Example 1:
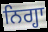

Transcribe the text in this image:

ਨਿਗ੍ਹਾ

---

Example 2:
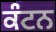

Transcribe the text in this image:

ਕੰਟਨ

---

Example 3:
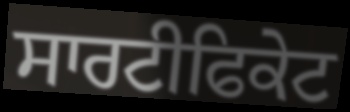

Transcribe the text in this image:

ਸਾਰਟੀਫਿਕੇਟ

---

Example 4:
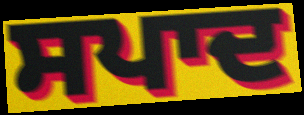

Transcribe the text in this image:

ਸਪਾਦ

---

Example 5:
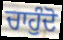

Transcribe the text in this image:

ਚਾਹੁੰਦੋ